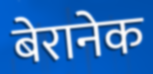
बेरानेक